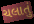
ચલાતું